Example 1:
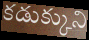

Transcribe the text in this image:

కడుక్కుని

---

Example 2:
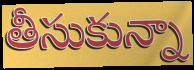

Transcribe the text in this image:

తీసుకున్నా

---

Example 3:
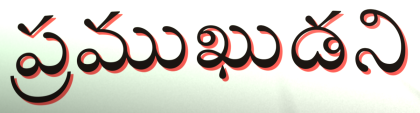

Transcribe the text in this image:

ప్రముఖుడని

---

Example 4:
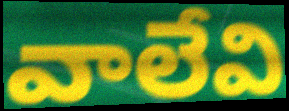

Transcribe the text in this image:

వాలేవి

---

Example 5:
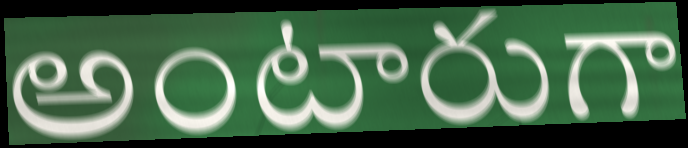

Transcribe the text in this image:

అంటారుగా